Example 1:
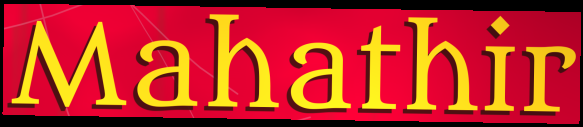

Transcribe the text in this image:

Mahathir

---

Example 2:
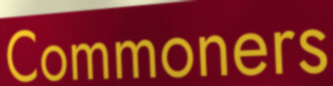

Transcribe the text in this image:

Commoners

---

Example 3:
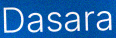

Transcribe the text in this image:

Dasara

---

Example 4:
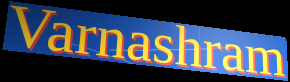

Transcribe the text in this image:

Varnashram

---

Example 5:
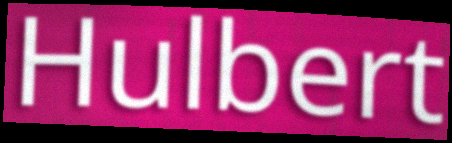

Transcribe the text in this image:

Hulbert